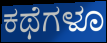
ಕಥೆಗಳೂ